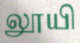
லூயி